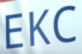
EKC